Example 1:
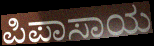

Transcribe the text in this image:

ಪಿಪಾಸಾಯ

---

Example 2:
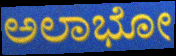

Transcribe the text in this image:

ಅಲಾಭೋ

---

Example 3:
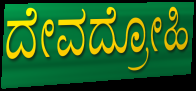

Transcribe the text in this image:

ದೇವದ್ರೋಹಿ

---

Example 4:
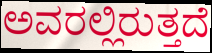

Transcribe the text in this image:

ಅವರಲ್ಲಿರುತ್ತದೆ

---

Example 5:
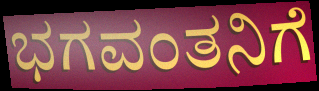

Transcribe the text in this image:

ಭಗವಂತನಿಗೆ